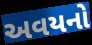
અવયનો